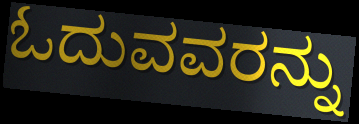
ಓದುವವರನ್ನು